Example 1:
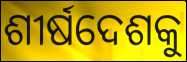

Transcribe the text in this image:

ଶୀର୍ଷଦେଶକୁ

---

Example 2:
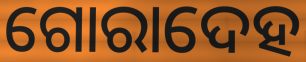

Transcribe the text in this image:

ଗୋରାଦେହ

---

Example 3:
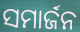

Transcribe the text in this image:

ସମାର୍ଜନ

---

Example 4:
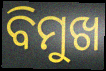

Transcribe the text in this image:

ବିମୁଖ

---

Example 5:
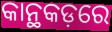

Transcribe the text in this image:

କାନ୍ଥକଡ଼ରେ